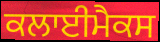
ਕਲਾਈਮੈਕਸ